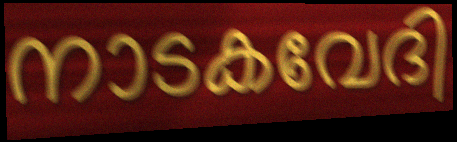
നാടകവേദി